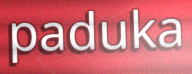
paduka